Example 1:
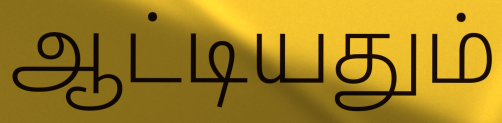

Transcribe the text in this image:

ஆட்டியதும்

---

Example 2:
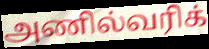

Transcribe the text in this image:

அணில்வரிக்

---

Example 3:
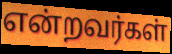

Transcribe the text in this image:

என்றவர்கள்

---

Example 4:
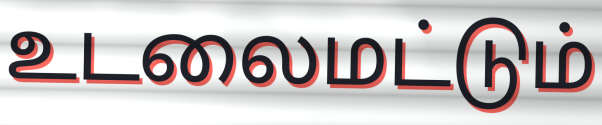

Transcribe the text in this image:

உடலைமட்டும்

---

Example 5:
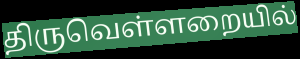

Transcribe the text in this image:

திருவெள்ளறையில்